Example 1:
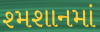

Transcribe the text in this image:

શ્મશાનમાં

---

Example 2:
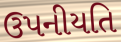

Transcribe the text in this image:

ઉપનીયતિ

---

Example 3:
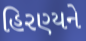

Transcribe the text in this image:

હિરણ્યને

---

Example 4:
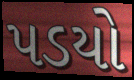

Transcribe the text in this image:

પડયો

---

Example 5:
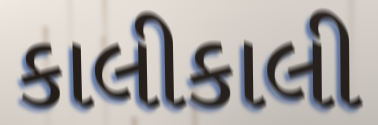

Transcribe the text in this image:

કાલીકાલી